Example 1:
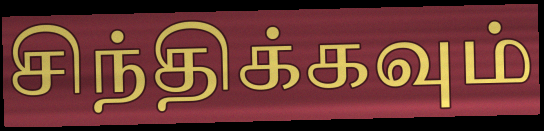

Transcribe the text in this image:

சிந்திக்கவும்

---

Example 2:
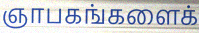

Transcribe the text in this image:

ஞாபகங்களைக்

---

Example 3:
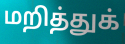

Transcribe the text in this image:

மறித்துக்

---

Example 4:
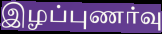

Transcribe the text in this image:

இழப்புணர்வு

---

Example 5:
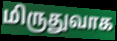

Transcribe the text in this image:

மிருதுவாக